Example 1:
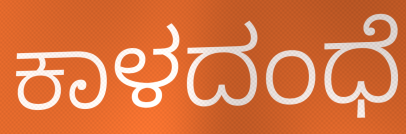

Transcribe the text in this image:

ಕಾಳದಂಧೆ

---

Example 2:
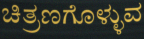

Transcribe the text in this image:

ಚಿತ್ರಣಗೊಳ್ಳುವ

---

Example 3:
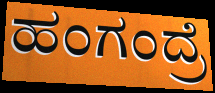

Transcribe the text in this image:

ಹಂಗಂದ್ರೆ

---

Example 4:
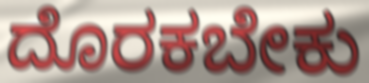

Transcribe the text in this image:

ದೊರಕಬೇಕು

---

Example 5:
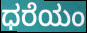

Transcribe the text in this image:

ಧರೆಯಂ